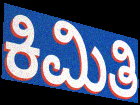
ಕಿಮಿತಿ